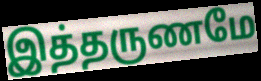
இத்தருணமே